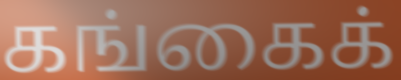
கங்கைக்